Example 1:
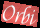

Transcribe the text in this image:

Orbi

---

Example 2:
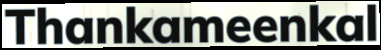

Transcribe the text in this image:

Thankameenkal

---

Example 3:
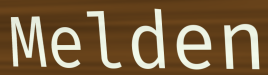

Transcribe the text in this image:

Melden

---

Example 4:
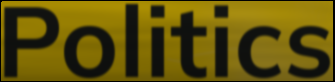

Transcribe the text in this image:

Politics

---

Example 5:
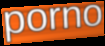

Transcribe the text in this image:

porno